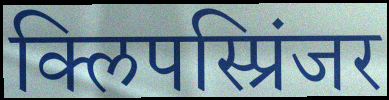
क्लिपस्प्रिंजर